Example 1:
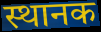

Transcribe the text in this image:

स्थानक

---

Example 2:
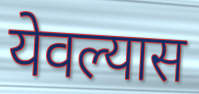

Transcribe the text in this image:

येवल्यास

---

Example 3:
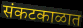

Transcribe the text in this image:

संकटकाळात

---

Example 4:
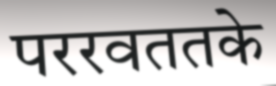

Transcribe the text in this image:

पररवततके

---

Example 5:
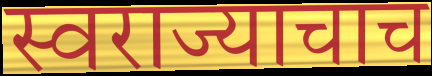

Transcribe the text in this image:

स्वराज्याचाच